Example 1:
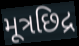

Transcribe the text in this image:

મૂત્રછિદ્ર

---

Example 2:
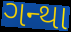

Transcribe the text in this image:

ગન્થા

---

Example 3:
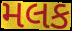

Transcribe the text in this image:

મલક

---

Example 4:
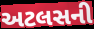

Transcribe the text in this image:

અટલસની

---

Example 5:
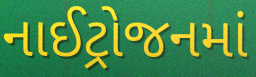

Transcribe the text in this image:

નાઈટ્રોજનમાં